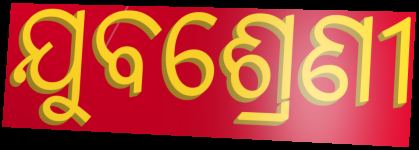
ଯୁବଶ୍ରେଣୀ